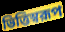
ভিত্তিস্বরূপ